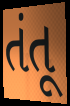
તંતૂ